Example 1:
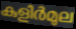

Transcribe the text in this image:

കുളിർമുല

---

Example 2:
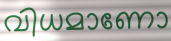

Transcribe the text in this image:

വിധമാണോ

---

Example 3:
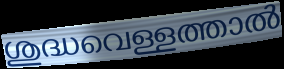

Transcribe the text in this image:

ശുദ്ധവെള്ളത്താൽ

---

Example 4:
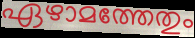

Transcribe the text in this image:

ഏഴാമത്തേതും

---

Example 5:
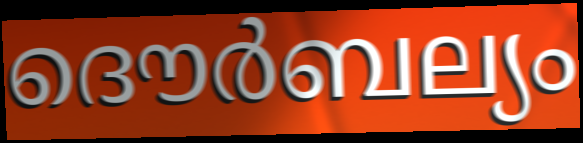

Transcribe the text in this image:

ദൌർബല്യം